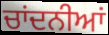
ਚਾਂਦਨੀਆਂ